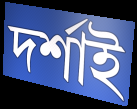
দৰ্শাই